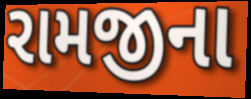
રામજીના